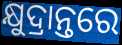
କ୍ଷୁଦ୍ରାନ୍ତରେ